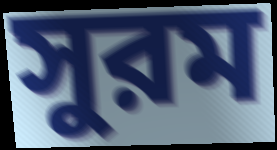
সুরম